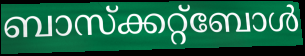
ബാസ്ക്കറ്റ്ബോൾ